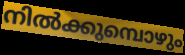
നിൽക്കുമ്പൊഴും